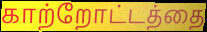
காற்றோட்டத்தை